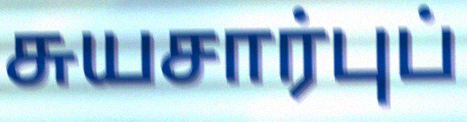
சுயசார்புப்